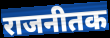
राजनीतक